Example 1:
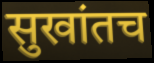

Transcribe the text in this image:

सुखांतच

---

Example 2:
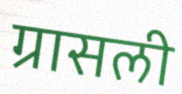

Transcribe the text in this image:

ग्रासली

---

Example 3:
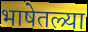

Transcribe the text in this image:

भाषेतल्या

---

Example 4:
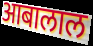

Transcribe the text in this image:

आबालाल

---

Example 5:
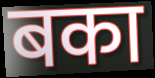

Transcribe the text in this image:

बका